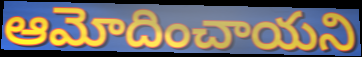
ఆమోదించాయని